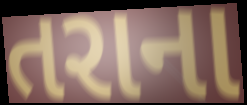
તરાના